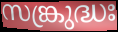
സങ്ക്രുദ്ധഃ